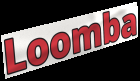
Loomba